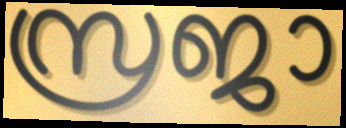
സ്രജാ